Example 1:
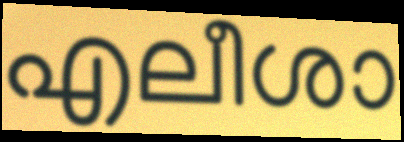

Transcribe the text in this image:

എലീശാ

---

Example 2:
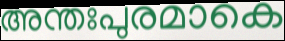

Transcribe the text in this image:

അന്തഃപുരമാകെ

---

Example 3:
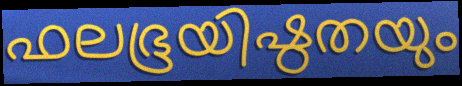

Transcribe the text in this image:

ഫലഭൂയിഷ്ഠതയും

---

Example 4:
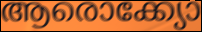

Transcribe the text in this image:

ആരൊക്ക്യോ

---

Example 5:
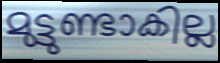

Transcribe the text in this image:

മുട്ടുണ്ടാകില്ല